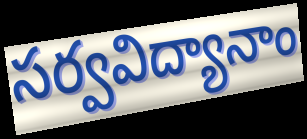
సర్వవిద్యానాం